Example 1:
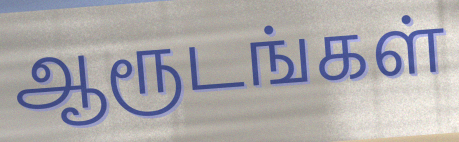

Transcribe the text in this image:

ஆரூடங்கள்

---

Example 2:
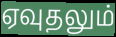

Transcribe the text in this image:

ஏவுதலும்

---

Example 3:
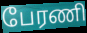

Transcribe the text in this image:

பேரணி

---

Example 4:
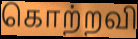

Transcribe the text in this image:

கொற்றவி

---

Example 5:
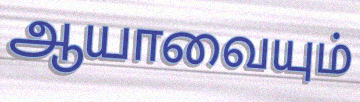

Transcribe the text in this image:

ஆயாவையும்